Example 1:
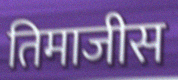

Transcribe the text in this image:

तिमाजीस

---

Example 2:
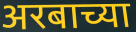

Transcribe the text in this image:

अरबाच्या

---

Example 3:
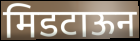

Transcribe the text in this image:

मिडटाऊन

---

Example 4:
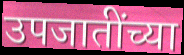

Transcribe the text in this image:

उपजातींच्या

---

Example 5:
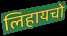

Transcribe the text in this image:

लिहायचो